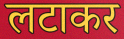
लटाकर